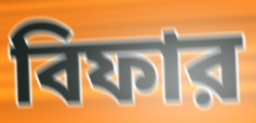
বিফার